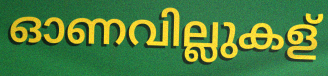
ഓണവില്ലുകള്